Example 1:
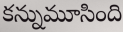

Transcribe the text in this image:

కన్నుమూసింది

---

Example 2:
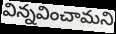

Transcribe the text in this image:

విన్నవించామని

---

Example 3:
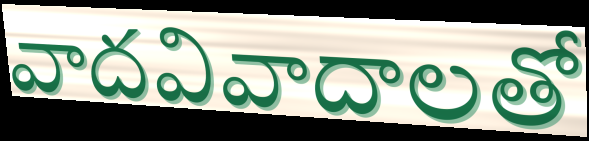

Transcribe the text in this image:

వాదవివాదాలతో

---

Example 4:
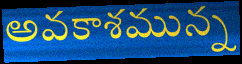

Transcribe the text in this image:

అవకాశమున్న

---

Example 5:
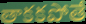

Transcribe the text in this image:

తాకకపోతే